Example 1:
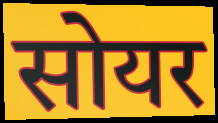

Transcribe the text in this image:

सोयर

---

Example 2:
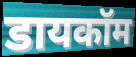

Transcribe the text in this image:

डायकॉम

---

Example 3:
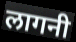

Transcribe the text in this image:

लागनी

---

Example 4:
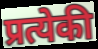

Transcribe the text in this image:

प्रत्येकी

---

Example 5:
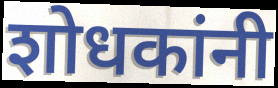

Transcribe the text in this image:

शोधकांनी